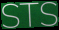
STS